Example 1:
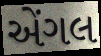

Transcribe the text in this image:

એંગલ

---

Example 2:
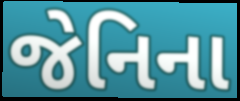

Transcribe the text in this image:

જેનિના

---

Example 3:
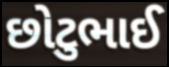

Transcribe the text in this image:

છોટુભાઈ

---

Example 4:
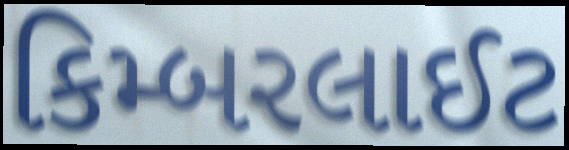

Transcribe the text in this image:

કિમ્બરલાઈટ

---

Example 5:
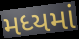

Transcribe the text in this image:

મધ્યમાં